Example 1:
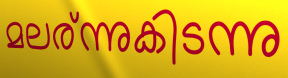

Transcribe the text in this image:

മലര്ന്നുകിടന്നു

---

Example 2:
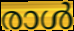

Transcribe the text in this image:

രാൾ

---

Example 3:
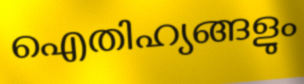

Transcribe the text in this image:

ഐതിഹ്യങ്ങളും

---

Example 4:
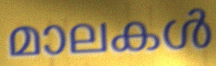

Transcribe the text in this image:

മാലകൾ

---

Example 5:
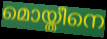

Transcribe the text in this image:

മൊയ്തീനെ